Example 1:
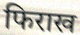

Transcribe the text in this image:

फिराख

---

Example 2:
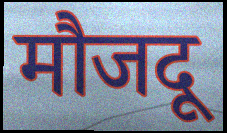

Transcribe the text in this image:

मौजदू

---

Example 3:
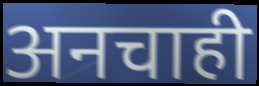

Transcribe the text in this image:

अनचाही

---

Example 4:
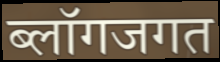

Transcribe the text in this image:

ब्लॉगजगत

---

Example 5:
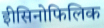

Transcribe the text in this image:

ईोसिनोफिलिक